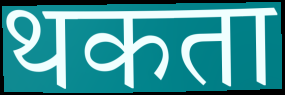
थकता